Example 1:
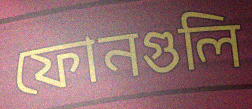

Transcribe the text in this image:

ফোনগুলি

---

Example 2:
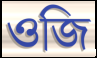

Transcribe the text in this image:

ওজি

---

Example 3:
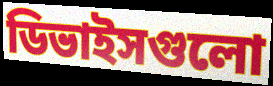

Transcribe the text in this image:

ডিভাইসগুলো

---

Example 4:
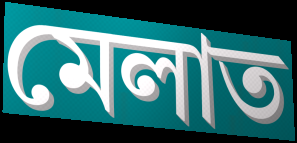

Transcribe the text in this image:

মেলাত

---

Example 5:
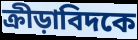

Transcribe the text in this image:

ক্রীড়াবিদকে